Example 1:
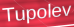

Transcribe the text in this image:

Tupolev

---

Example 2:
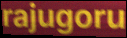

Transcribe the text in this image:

rajugoru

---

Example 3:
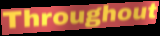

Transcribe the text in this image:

Throughout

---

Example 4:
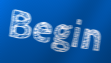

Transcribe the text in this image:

Begin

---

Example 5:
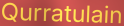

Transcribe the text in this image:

Qurratulain